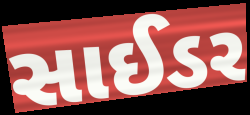
સાઈડર